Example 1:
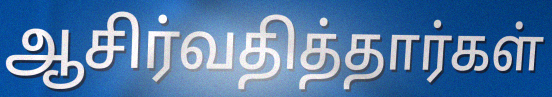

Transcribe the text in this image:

ஆசிர்வதித்தார்கள்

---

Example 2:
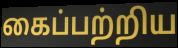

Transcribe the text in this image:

கைப்பற்றிய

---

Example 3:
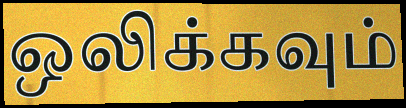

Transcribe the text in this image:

ஒலிக்கவும்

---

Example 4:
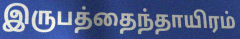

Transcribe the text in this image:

இருபத்தைந்தாயிரம்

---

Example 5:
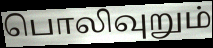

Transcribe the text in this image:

பொலிவுறும்